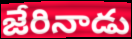
జేరినాడు